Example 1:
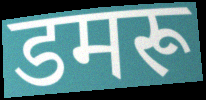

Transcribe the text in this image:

डमरू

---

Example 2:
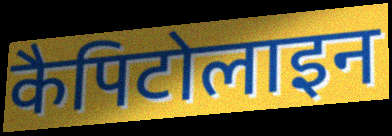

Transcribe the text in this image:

कैपिटोलाइन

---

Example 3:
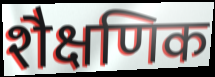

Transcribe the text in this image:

शैक्षणिक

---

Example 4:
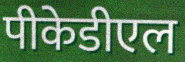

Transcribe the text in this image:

पीकेडीएल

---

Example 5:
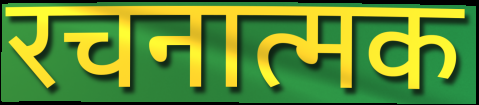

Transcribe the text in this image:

रचनात्मक